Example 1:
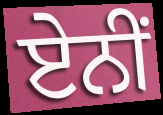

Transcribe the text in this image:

ਏਨੀਂ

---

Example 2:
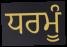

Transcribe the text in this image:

ਧਰਮੂੰ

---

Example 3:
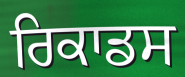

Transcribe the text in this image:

ਰਿਕਾਡਸ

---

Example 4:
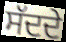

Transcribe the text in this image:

ਸੱਦਦੇ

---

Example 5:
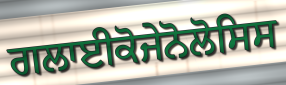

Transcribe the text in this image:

ਗਲਾਈਕੋਜੇਨੋਲੋਸਿਸ